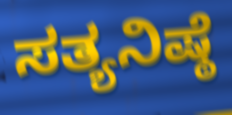
ಸತ್ಯನಿಷ್ಠೆ